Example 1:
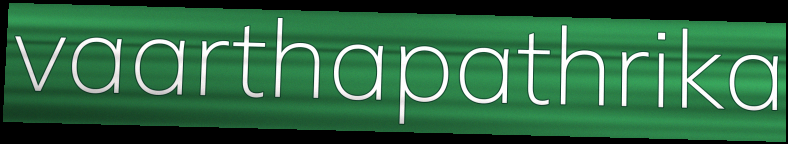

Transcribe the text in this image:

vaarthapathrika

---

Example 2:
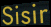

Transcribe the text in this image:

Sisir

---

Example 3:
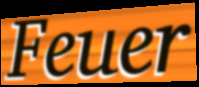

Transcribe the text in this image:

Feuer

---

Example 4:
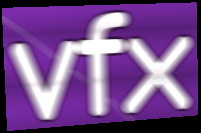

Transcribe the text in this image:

vfx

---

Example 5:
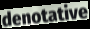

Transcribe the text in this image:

denotative